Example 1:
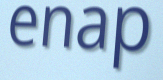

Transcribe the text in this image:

enap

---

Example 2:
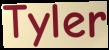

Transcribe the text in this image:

Tyler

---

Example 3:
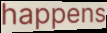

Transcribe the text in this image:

happens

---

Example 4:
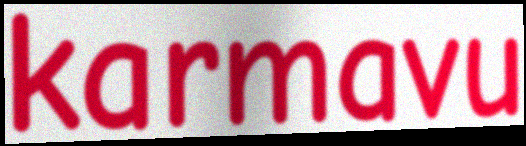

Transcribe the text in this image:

karmavu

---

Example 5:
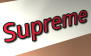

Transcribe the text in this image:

Supreme